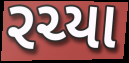
રચ્યા